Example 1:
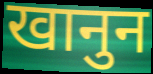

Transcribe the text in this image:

खानुन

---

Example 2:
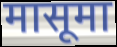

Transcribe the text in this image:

मासूमा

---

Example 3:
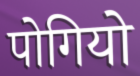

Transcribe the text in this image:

पोगियो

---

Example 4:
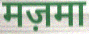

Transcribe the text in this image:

मज़मा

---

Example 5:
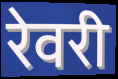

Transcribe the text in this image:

रेवरी